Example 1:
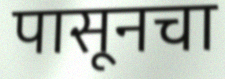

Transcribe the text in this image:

पासूनचा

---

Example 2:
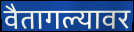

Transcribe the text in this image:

वैतागल्यावर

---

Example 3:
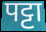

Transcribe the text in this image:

पट्टा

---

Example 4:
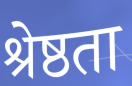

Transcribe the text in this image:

श्रेष्ठता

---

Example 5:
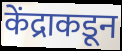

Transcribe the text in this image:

केंद्राकडून